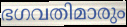
ഭഗവതിമാരും